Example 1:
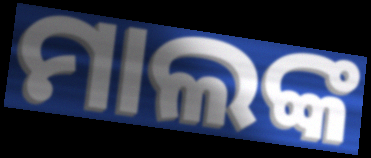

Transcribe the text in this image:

ମାଲଙ୍କ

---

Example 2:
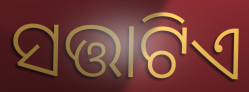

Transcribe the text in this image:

ସତ୍ତାଟିଏ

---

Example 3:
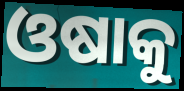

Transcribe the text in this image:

ଓଷାକୁ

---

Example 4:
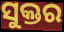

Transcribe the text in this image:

ସୁକ୍ତର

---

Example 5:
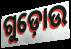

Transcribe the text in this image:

ଗୁଡ଼ୋଉ